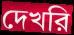
দেখরি